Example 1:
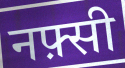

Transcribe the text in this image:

नफ़्सी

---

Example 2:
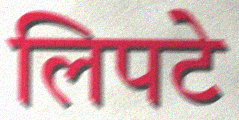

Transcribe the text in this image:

लिपटे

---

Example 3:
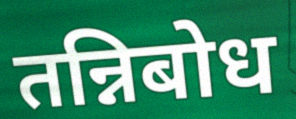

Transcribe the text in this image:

तन्निबोध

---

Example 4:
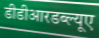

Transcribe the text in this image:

डीडीआरडब्ल्यूए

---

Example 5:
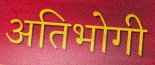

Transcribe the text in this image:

अतिभोगी